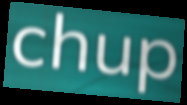
chup